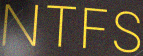
NTFS